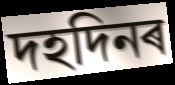
দহদিনৰ